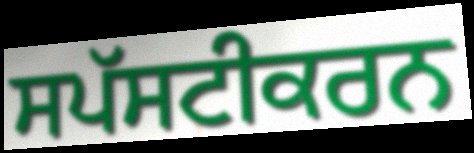
ਸਪੱਸਟੀਕਰਨ